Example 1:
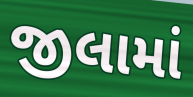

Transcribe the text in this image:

જીલામાં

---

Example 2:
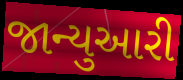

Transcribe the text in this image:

જાન્યુઆરી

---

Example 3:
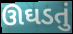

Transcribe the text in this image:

ઊઘડતું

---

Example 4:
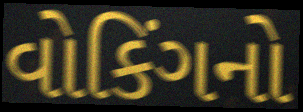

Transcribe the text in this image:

વોકિંગનો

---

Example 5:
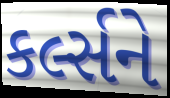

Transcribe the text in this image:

કર્લ્સને